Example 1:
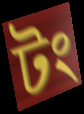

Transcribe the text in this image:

টং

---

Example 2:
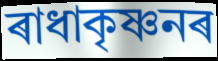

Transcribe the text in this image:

ৰাধাকৃষ্ণনৰ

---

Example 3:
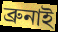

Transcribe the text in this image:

ব্ৰুনাই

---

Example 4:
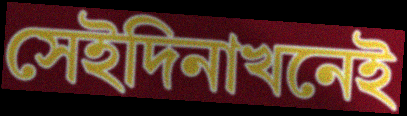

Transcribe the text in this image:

সেইদিনাখনেই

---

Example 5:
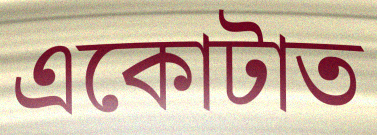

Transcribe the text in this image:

একোটাত